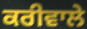
ਕਰੀਵਾਲੇ